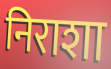
निराशा